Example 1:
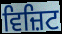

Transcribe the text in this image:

ਵਿਜ਼ਿਟ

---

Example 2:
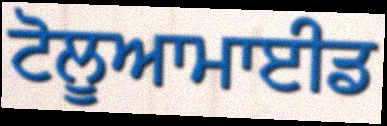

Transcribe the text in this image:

ਟੋਲੂਆਮਾਈਡ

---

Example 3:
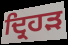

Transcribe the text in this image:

ਦ੍ਰਿਹੜ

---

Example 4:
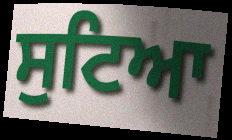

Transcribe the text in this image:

ਸੁਟਿਆ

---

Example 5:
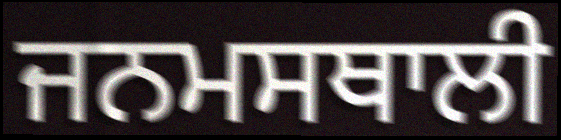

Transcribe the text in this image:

ਜਨਮਸਥਾਲੀ